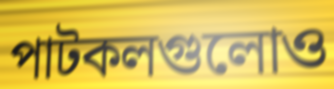
পাটকলগুলোও